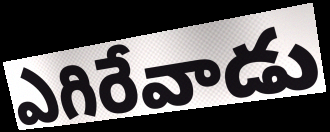
ఎగిరేవాడు